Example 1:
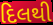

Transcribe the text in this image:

દિલથી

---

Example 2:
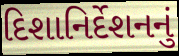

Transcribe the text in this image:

દિશાનિર્દેશનનું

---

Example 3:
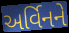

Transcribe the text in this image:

અર્વિનને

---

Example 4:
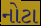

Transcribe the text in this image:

નોટા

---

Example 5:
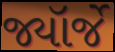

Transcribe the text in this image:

જ્યૉર્જે